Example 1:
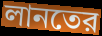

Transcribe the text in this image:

লানতের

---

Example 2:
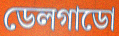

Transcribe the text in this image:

ডেলগাডো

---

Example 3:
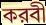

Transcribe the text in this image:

করবী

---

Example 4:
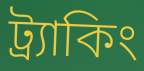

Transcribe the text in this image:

ট্র্যাকিং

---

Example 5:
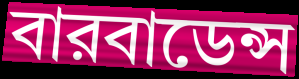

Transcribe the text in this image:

বারবাডেন্স